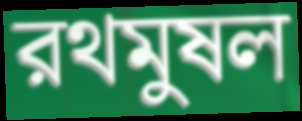
রথমুষল